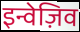
इन्वेज़िव